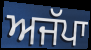
ਅਜੱਪਾ